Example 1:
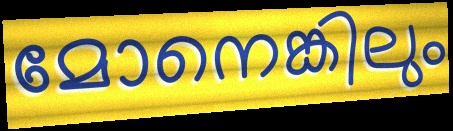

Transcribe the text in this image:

മോനെങ്കിലും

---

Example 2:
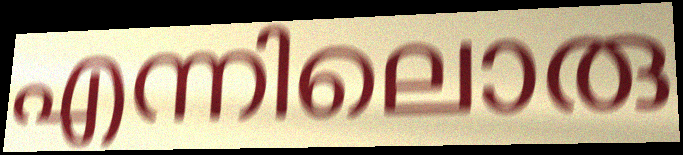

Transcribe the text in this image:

എന്നിലൊരു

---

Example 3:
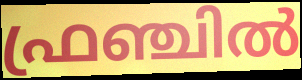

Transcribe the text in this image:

ഫ്രഞ്ചിൽ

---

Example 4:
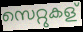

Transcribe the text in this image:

സെറ്റുകള്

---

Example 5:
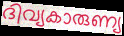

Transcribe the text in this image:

ദിവ്യകാരുണ്യ